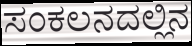
ಸಂಕಲನದಲ್ಲಿನ